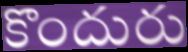
కొందురు